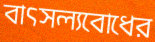
বাৎসল্যবোধের